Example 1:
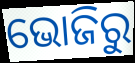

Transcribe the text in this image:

ଭୋଜିରୁ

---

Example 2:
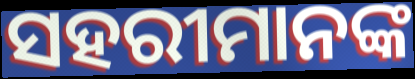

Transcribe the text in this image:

ସହରୀମାନଙ୍କ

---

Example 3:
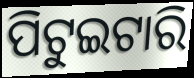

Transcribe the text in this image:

ପିଟୁଇଟାରି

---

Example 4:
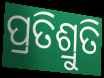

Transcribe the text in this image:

ପ୍ରତିଶ୍ରୁତି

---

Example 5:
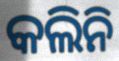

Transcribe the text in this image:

କଲିନି